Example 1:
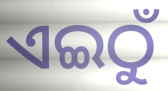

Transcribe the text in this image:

ଏଇଠୁଁ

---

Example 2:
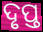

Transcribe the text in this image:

ଦୃପ୍ତ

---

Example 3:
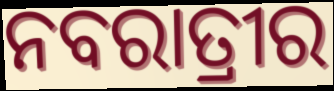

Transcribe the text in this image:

ନବରାତ୍ରୀର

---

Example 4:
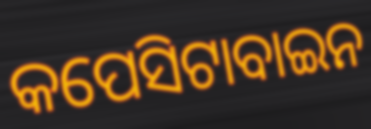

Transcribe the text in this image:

କପେସିଟାବାଇନ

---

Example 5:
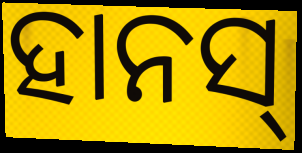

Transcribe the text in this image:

ହାନସ୍